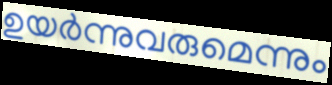
ഉയർന്നുവരുമെന്നും